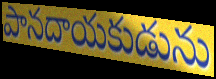
పానదాయకుడును